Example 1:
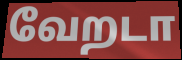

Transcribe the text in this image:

வேறடா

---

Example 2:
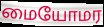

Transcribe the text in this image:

மையோமர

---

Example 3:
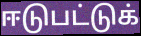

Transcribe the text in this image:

ஈடுபட்டுக்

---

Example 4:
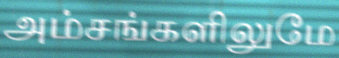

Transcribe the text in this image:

அம்சங்களிலுமே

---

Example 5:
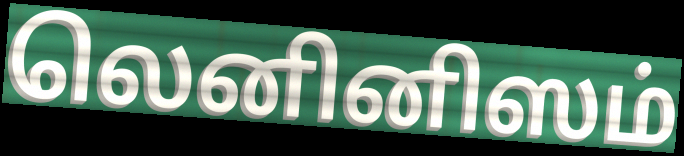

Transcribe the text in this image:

லெனினிஸம்